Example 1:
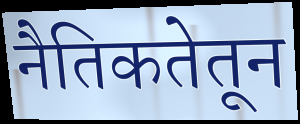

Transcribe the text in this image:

नैतिकतेतून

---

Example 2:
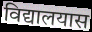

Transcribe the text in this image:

विद्यालयास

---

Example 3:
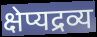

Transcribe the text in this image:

क्षेप्यद्रव्य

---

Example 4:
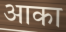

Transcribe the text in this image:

आका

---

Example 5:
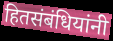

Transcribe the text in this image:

हितसंबंधियांनी